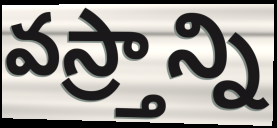
వస్ర్తాన్ని